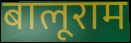
बालूराम